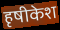
हृषीकेश